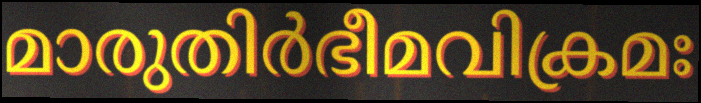
മാരുതിർഭീമവിക്രമഃ